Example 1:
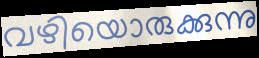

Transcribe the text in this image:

വഴിയൊരുക്കുന്നു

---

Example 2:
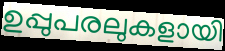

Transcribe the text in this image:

ഉപ്പുപരലുകളായി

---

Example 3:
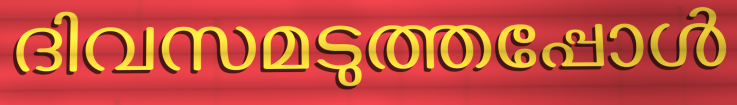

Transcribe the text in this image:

ദിവസമടുത്തപ്പോൾ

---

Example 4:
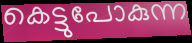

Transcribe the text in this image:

കെട്ടുപോകുന്ന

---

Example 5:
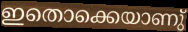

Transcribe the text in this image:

ഇതൊക്കെയാണു്